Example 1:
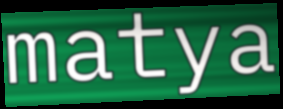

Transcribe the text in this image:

matya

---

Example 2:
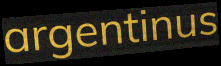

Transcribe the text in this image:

argentinus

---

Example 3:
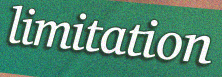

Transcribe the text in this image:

limitation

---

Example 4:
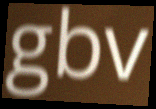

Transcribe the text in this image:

gbv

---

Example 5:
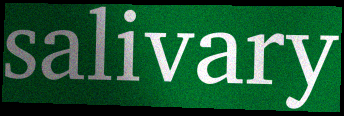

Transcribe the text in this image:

salivary